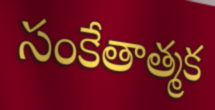
సంకేతాత్మక